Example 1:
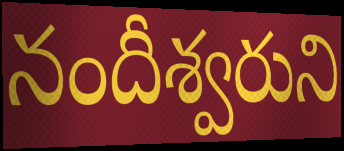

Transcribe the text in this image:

నందీశ్వరుని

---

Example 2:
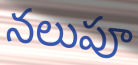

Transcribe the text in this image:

నలుపూ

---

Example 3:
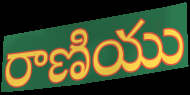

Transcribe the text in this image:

రాణియు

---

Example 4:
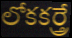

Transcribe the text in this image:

లోకకర్త్రే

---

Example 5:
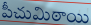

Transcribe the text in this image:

పీచుమిఠాయి